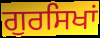
ਗੁਰਸਿਖਾਂ